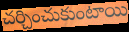
చర్చించుకుంటాయి